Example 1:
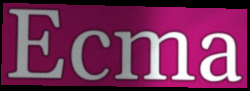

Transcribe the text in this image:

Ecma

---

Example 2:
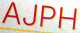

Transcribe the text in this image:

AJPH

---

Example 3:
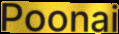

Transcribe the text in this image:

Poonai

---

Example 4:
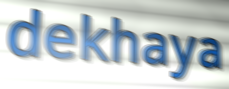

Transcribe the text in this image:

dekhaya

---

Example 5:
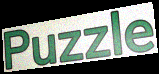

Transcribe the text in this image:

Puzzle